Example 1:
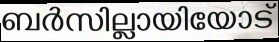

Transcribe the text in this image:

ബർസില്ലായിയോട്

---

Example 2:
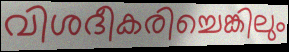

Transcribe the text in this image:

വിശദീകരിച്ചെങ്കിലും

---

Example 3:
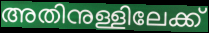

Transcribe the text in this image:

അതിനുള്ളിലേക്ക്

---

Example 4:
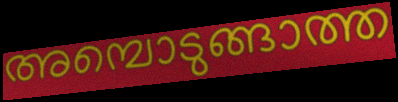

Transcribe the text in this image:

അമ്പൊടുങ്ങാത്ത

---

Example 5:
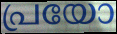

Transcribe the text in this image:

പ്രയോ